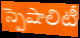
స్పెషాలిటీ